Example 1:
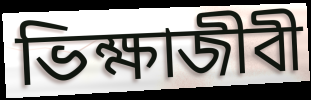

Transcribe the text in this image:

ভিক্ষাজীবী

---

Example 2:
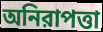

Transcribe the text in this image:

অনিরাপত্তা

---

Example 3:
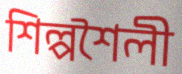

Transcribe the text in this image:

শিল্পশৈলী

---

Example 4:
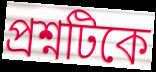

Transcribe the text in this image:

প্রশ্নটিকে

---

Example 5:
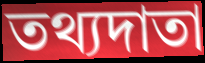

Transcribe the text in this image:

তথ্যদাতা